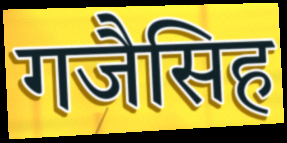
गजैसिह